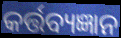
କର୍ତ୍ତବ୍ୟଜ୍ଞାନ